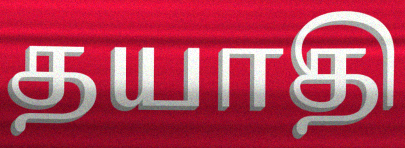
தயாதி